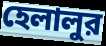
হেলালুর